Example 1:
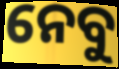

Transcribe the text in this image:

ନେବୁ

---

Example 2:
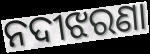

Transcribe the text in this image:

ନଦୀଝରଣା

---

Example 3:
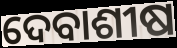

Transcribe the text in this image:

ଦେବାଶୀଷ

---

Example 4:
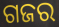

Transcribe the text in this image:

ଗଜର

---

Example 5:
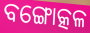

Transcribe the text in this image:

ବଙ୍ଗୋତ୍କଳ